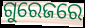
ଗୁରେଜରେ